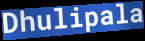
Dhulipala